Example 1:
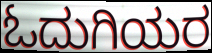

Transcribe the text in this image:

ಓದುಗಿಯರ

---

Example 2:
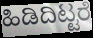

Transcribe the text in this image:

ಹಿಡಿದಿಟ್ಟರೆ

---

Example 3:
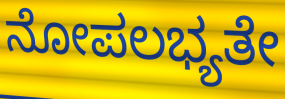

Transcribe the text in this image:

ನೋಪಲಭ್ಯತೇ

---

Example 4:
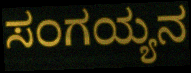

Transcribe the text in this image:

ಸಂಗಯ್ಯನ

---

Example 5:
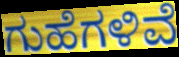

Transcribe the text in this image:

ಗುಹೆಗಳಿವೆ